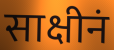
साक्षीनं